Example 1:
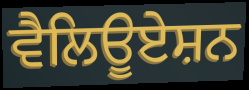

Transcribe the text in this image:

ਵੈਲਿਊਏਸ਼ਨ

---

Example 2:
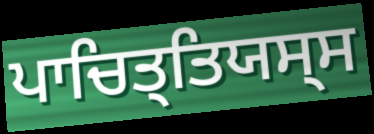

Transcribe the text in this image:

ਪਾਚਿਤ੍ਤਿਯਸ੍ਸ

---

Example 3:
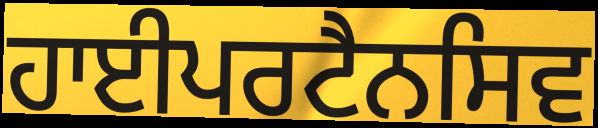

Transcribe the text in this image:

ਹਾਈਪਰਟੈਨਸਿਵ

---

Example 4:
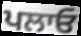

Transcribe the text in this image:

ਪਲਾਓ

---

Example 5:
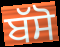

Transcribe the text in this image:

ਬੱਸੋ